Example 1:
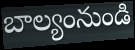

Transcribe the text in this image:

బాల్యంనుండి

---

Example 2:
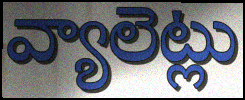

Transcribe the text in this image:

వ్యాలెట్లు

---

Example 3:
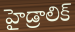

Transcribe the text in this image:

హైడ్రాలిక్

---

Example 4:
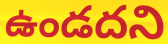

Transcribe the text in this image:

ఉండదని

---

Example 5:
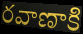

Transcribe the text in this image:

రవాణాకి